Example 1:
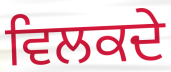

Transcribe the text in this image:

ਵਿਲਕਦੇ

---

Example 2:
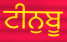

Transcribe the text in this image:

ਟੀਨੁਬੂ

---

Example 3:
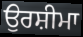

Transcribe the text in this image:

ਉਰਸ਼ੀਮਾ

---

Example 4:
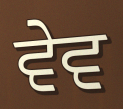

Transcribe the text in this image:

ਵੇਵ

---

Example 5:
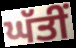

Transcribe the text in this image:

ਘੱਤੀਂ